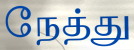
நேத்து